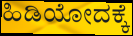
ಹಿಡಿಯೋದಕ್ಕೆ